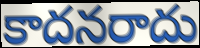
కాదనరాదు